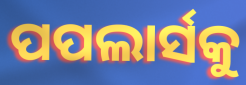
ପପଲାର୍ସକୁ